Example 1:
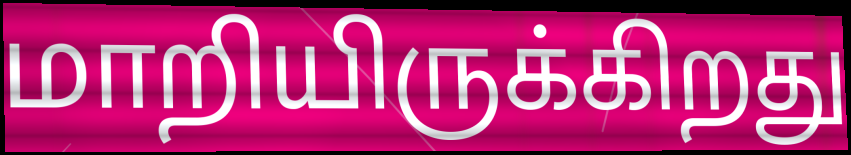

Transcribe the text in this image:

மாறியிருக்கிறது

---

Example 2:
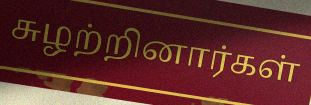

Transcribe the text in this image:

சுழற்றினார்கள்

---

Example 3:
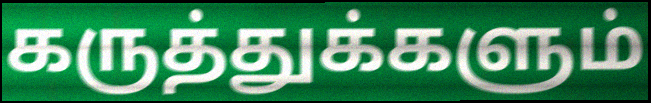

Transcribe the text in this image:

கருத்துக்களும்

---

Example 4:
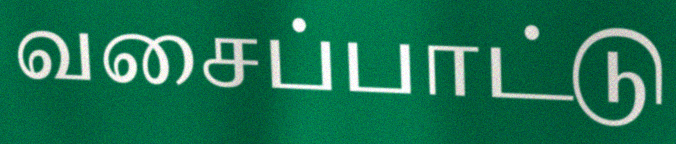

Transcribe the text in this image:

வசைப்பாட்டு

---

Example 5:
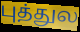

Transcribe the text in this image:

புத்துல